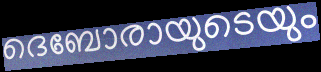
ദെബോരായുടെയും